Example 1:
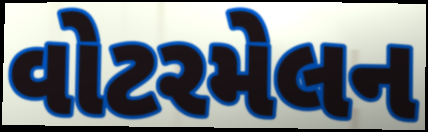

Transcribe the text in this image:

વોટરમેલન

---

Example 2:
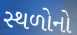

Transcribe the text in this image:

સ્થળોનો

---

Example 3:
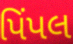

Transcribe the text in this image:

પિંપલ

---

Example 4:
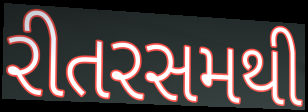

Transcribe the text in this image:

રીતરસમથી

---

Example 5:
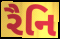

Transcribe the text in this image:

રૈનિ